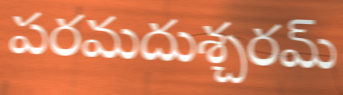
పరమదుశ్చరమ్